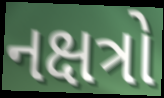
નક્ષત્રો